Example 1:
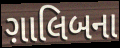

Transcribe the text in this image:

ગ઼ાલિબના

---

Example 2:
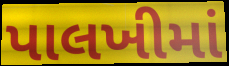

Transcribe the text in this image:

પાલખીમાં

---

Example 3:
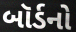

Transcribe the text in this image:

બૉર્ડનો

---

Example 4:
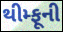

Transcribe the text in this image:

થીમ્ફૂની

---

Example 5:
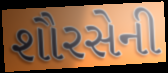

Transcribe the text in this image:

શૌરસેની